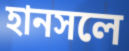
হানসলে